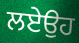
ਲਏਉਹ